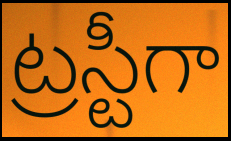
ట్రస్టీగా